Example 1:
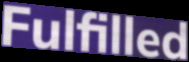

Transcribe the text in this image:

Fulfilled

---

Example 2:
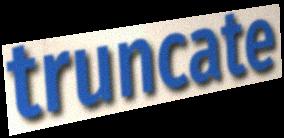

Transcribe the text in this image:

truncate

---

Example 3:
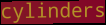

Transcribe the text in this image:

cylinders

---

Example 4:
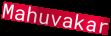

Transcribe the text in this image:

Mahuvakar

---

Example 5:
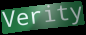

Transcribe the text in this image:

Verity